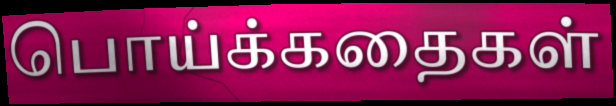
பொய்க்கதைகள்